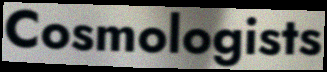
Cosmologists